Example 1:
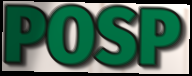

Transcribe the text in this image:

POSP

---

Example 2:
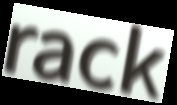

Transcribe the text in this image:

rack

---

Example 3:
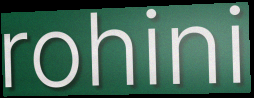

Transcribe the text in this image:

rohini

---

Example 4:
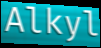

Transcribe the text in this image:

Alkyl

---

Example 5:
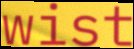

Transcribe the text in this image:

wist